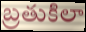
బ్రతుకిలా